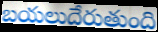
బయలుదేరుతుంది